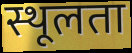
स्थूलता